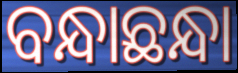
ବନ୍ଧାଛନ୍ଧା